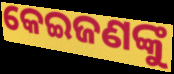
କେଇଜଣଙ୍କୁ